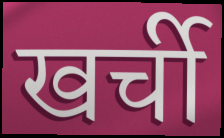
खर्ची